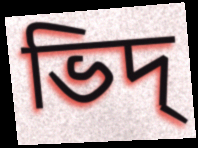
ভিদ্